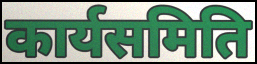
कार्यसमिति